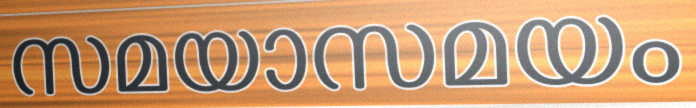
സമയാസമയം